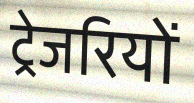
ट्रेजरियों